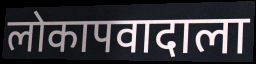
लोकापवादाला